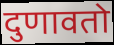
दुणावतो